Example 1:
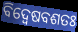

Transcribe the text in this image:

ବିଦ୍ୱେଷବଶତଃ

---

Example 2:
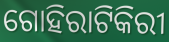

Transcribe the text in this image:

ଗୋହିରାଟିକିରୀ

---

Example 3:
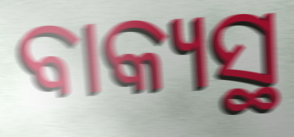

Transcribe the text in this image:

ବାକ୍ୟସ୍ଥ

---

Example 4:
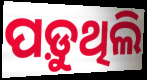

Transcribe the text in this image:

ପଡ଼ୁଥିଲି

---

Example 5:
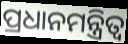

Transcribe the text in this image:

ପ୍ରଧାନମନ୍ତ୍ରିତ୍ଵ